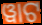
ୱାଟ